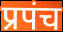
प्रपंच